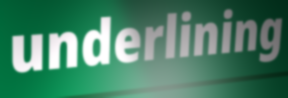
underlining